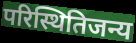
परिस्थितिजन्य